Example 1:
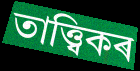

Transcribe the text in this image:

তাত্ত্বিকৰ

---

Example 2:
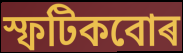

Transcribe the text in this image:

স্ফটিকবোৰ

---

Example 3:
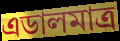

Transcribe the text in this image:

এডালমাত্ৰ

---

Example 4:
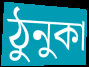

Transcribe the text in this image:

ঠুনুকা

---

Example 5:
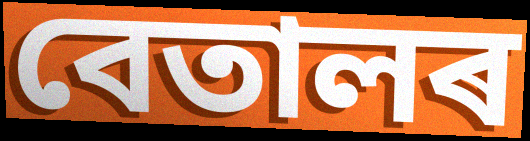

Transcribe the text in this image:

বেতালৰ